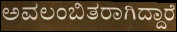
ಅವಲಂಬಿತರಾಗಿದ್ದಾರೆ